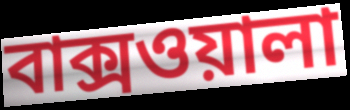
বাক্সওয়ালা